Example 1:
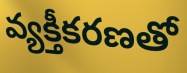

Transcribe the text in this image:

వ్యక్తీకరణతో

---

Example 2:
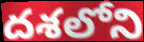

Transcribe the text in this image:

దశలోని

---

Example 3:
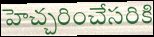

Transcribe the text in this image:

హెచ్చరించేసరికి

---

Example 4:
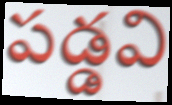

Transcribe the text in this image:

పడ్డవి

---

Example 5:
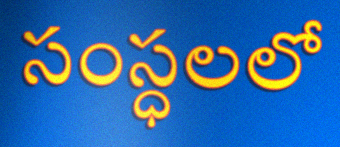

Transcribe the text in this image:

సంస్ధలలో